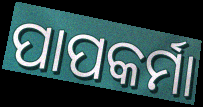
ପାପକର୍ମା